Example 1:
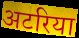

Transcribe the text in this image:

अटरिया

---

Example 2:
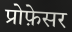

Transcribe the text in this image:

प्रोफ़ेसर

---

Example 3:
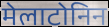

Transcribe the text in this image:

मेलाटोनिन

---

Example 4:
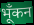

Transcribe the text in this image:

भूँकन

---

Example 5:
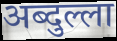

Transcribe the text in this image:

अब्दुल्ला